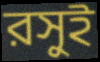
রসুই